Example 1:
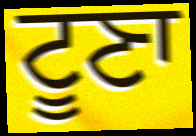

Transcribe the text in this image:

ਟੂਣਾ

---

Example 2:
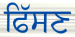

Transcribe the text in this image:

ਫਿੱਸਣ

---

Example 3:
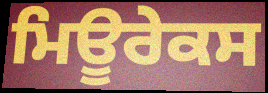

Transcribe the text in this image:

ਮਿਊਰੇਕਸ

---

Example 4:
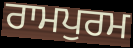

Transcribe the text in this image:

ਰਾਮਪੁਰਮ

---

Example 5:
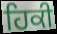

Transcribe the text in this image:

ਹਿਕੀ